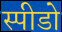
स्पीडो